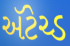
ઍટેચ્ડ